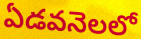
ఏడవనెలలో